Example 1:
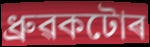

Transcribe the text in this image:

ধ্ৰুৱকটোৰ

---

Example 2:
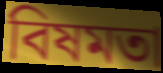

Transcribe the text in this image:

বিষমতা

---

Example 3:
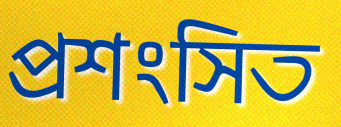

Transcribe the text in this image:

প্ৰশংসিত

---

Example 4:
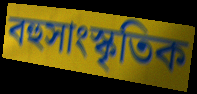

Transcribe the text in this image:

বহুসাংস্কৃতিক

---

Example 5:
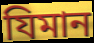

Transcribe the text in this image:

যিমান